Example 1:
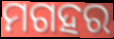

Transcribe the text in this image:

ମଗହର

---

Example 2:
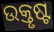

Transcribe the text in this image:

ଉକ୍ତୃଷ୍ଟ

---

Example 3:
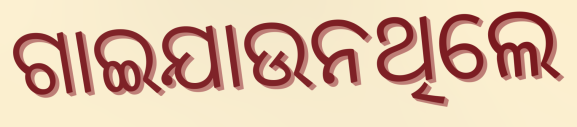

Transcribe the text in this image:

ଗାଇଯାଉନଥିଲେ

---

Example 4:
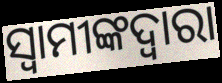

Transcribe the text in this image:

ସ୍ୱାମୀଙ୍କଦ୍ୱାରା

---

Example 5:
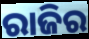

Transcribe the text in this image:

ରାଜିର